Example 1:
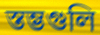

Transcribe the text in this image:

স্তম্ভগুলি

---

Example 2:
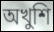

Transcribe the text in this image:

অখুশি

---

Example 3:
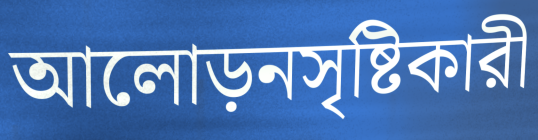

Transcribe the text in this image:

আলোড়নসৃষ্টিকারী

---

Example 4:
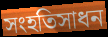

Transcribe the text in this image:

সংহতিসাধন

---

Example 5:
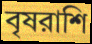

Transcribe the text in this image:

বৃষরাশি